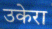
उकेरा